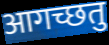
आगच्छतु